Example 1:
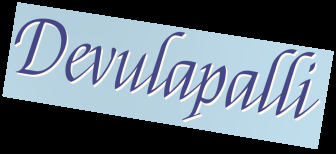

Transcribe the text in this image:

Devulapalli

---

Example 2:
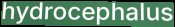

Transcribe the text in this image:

hydrocephalus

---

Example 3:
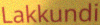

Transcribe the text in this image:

Lakkundi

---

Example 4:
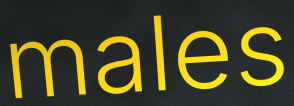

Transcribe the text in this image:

males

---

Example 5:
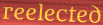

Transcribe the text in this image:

reelected